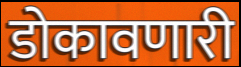
डोकावणारी